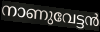
നാണുവേട്ടൻ